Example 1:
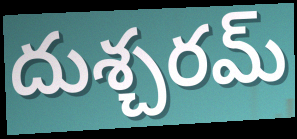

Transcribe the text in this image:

దుశ్చరమ్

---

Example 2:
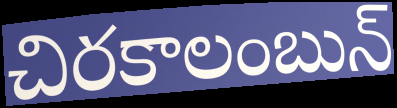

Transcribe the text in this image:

చిరకాలంబున్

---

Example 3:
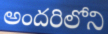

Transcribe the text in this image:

అందరిలోని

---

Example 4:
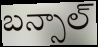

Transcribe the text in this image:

బన్సాల్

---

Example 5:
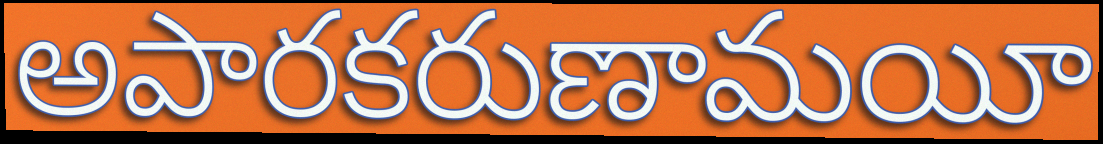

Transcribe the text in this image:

అపారకరుణామయీ